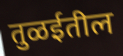
तुळईतील